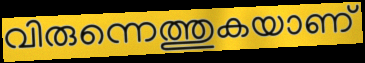
വിരുന്നെത്തുകയാണ്